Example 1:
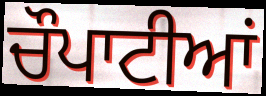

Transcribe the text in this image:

ਚੌਪਾਟੀਆਂ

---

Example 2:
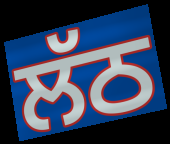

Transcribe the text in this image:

ਲੱਠ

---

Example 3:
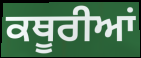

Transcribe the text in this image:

ਕਥੂਰੀਆਂ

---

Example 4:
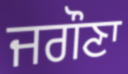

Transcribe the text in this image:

ਜਗੌਣਾ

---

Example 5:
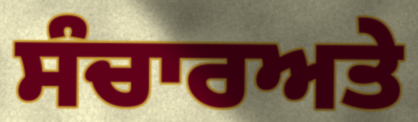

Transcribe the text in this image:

ਸੰਚਾਰਅਤੇ